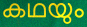
കഥയും